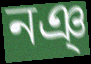
নঞ্